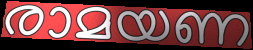
രാമയണ